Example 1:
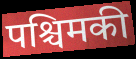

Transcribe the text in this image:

पश्चिमकी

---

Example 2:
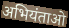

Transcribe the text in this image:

अभियंताओ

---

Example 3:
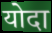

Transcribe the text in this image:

योदा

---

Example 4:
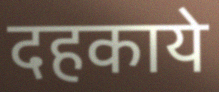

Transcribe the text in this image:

दहकाये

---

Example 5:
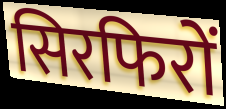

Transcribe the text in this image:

सिरफिरों